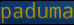
paduma